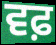
ਵਫ਼